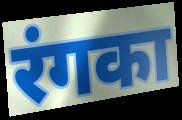
रंगका